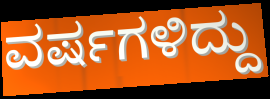
ವರ್ಷಗಳಿದ್ದು